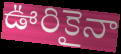
ఊరికైనా